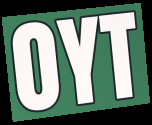
OYT